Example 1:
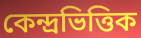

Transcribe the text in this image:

কেন্দ্রভিত্তিক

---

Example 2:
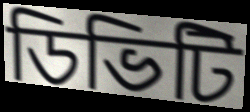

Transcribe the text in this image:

ডিভিটি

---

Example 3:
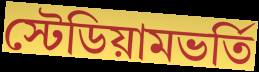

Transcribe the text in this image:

স্টেডিয়ামভর্তি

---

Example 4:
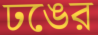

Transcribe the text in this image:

ঢঙের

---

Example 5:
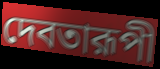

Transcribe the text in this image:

দেবতারূপী